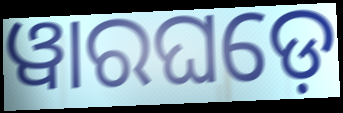
ୱାରଘଡ଼େ